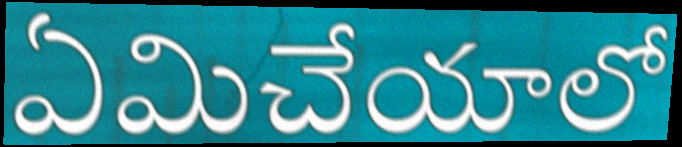
ఏమిచేయాలో